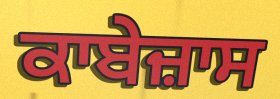
ਕਾਬੇਜ਼ਾਸ